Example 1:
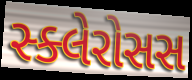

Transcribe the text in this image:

સ્ક્લેરોસસ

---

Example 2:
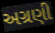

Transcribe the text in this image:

અગ્રણી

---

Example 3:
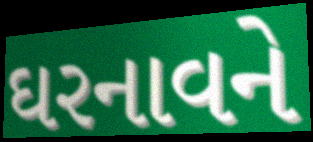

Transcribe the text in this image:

ઘરનાવને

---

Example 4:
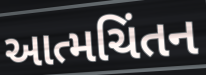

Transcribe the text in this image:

આત્મચિંતન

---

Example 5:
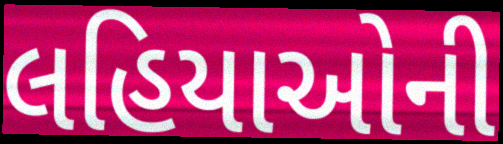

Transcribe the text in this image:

લહિયાઓની